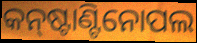
କନ୍‌ଷ୍ଟାଣ୍ଟିନୋପଲ